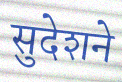
सुदेशने